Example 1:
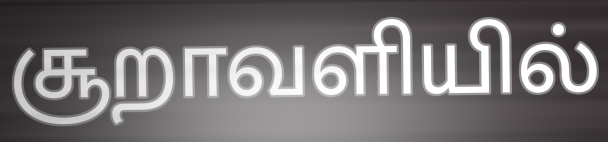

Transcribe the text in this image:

சூறாவளியில்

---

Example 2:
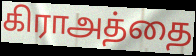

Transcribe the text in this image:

கிராஅத்தை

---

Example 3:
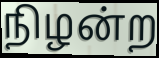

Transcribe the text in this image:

நிழன்ற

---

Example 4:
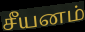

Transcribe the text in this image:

சீயனம்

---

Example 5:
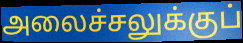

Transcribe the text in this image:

அலைச்சலுக்குப்